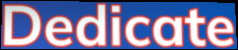
Dedicate